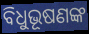
ବିଧୁଭୂଷଣଙ୍କ